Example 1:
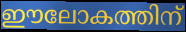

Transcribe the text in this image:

ഈലോകത്തിന്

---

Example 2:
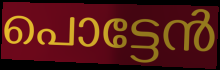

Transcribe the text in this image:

പൊട്ടേൻ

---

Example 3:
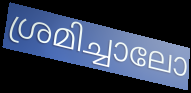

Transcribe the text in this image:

ശ്രമിച്ചാലോ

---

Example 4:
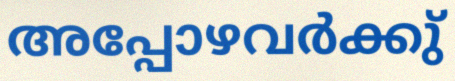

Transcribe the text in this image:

അപ്പോഴവർക്കു്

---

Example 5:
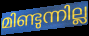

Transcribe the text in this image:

മിണ്ടുന്നില്ല